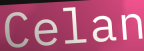
Celan